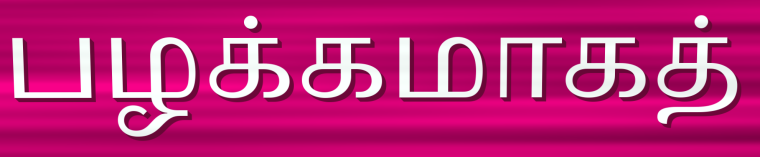
பழக்கமாகத்